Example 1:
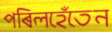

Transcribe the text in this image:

পৰিলহেঁতেন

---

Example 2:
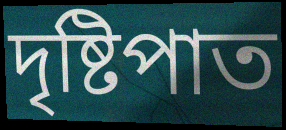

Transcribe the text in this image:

দৃষ্টিপাত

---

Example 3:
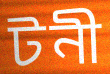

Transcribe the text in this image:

টনী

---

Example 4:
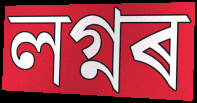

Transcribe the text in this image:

লগ্নৰ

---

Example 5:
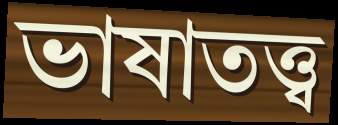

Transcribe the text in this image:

ভাষাতত্ত্ব